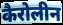
कैरोलीन